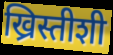
ख्रिस्तीशी